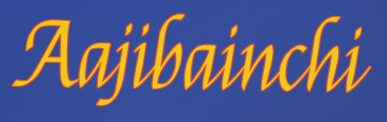
Aajibainchi